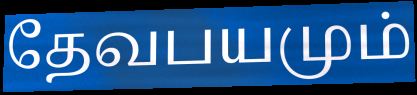
தேவபயமும்